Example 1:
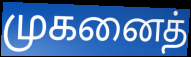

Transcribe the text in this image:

முகனைத்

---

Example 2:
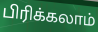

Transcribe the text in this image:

பிரிக்கலாம்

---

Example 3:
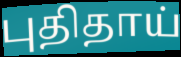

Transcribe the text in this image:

புதிதாய்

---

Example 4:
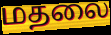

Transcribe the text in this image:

மதலை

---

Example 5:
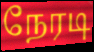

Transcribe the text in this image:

நேரடி